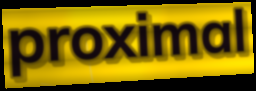
proximal